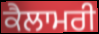
ਕੈਲਾਮਰੀ